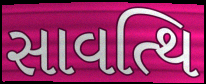
સાવત્થિ